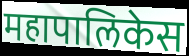
महापालिकेस